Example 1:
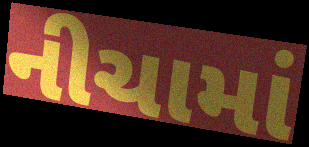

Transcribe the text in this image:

નીચામાં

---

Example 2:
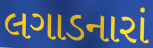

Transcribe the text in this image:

લગાડનારાં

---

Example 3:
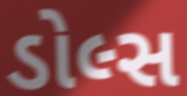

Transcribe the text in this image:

ડોલ્સ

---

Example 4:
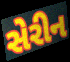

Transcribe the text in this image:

સેરીન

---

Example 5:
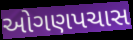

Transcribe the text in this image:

ઓગણપચાસ